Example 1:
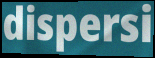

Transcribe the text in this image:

dispersi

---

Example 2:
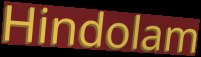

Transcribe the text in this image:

Hindolam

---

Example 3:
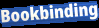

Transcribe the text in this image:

Bookbinding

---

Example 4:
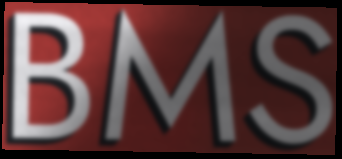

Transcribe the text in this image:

BMS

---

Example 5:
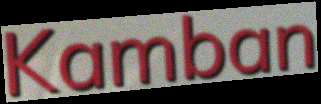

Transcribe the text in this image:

Kamban